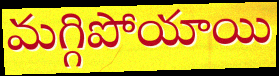
మగ్గిపోయాయి